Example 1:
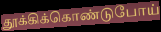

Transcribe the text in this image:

தூக்கிக்கொண்டுபோய்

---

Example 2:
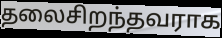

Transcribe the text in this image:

தலைசிறந்தவராக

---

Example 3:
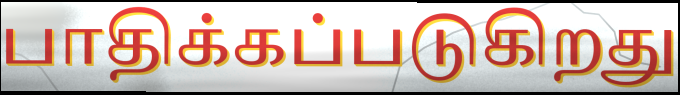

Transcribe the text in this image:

பாதிக்கப்படுகிறது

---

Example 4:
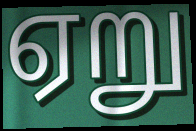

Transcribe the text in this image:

ஏறு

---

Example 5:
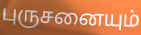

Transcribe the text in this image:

புருசனையும்